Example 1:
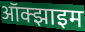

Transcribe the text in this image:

ऑक्झाइम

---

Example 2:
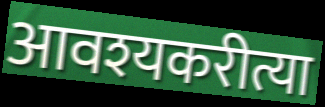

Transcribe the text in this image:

आवश्यकरीत्या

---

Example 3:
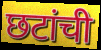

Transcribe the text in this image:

छटांची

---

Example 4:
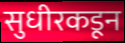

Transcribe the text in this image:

सुधीरकडून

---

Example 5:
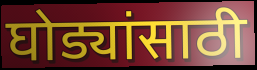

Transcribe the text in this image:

घोड्यांसाठी